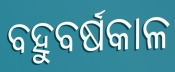
ବହୁବର୍ଷକାଳ